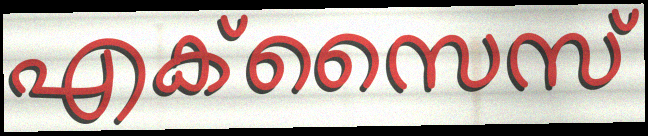
എക്‌സൈസ്